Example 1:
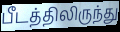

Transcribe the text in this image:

பீடத்திலிருந்து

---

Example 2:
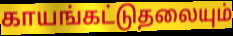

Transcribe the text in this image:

காயங்கட்டுதலையும்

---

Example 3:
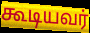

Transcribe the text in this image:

கூடியவர்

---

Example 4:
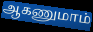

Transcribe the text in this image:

ஆகணுமாம்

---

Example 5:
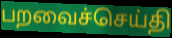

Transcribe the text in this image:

பறவைச்செய்தி